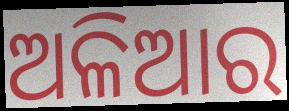
ଅଳିଆର